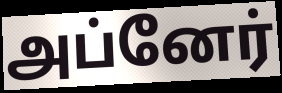
அப்னேர்